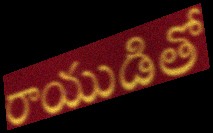
రాయుడితో